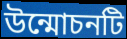
উন্মোচনটি